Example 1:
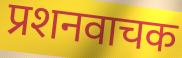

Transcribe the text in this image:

प्रशनवाचक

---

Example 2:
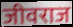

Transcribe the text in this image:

जीवराज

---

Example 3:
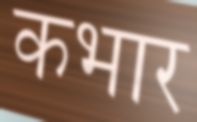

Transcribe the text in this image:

कभार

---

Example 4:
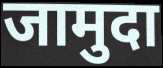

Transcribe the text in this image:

जामुदा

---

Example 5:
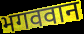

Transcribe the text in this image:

भगववान